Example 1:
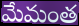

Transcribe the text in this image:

మేమంత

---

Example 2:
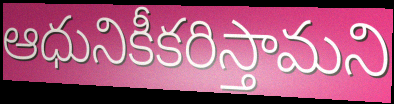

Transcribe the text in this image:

ఆధునికీకరిస్తామని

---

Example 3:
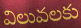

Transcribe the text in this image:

విలువలకు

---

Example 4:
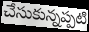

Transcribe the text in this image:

చేసుకున్నప్పటి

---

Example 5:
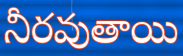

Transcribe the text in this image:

నీరవుతాయి